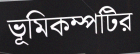
ভূমিকম্পটির